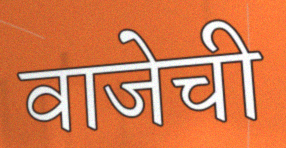
वाजेची